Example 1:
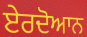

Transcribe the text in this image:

ਏਰਦੋਆਨ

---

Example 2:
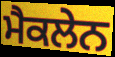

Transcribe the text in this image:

ਮੈਕਲੇਨ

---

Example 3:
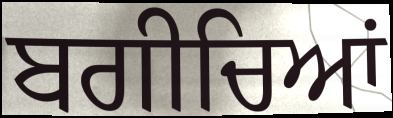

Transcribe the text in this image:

ਬਗੀਚਿਆਂ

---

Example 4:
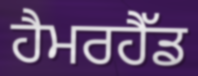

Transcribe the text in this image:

ਹੈਮਰਹੈੱਡ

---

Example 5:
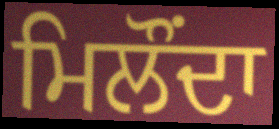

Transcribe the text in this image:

ਮਿਲੌਂਦਾ